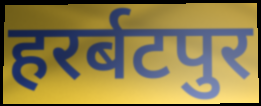
हरर्बटपुर